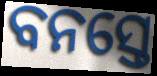
ବନସ୍ତେ